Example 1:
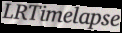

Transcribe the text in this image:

LRTimelapse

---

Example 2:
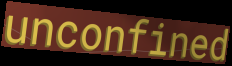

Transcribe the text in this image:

unconfined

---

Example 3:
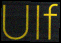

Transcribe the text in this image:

Ulf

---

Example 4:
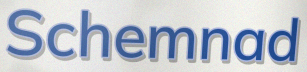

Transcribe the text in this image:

Schemnad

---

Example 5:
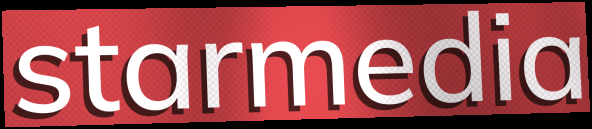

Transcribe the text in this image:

starmedia